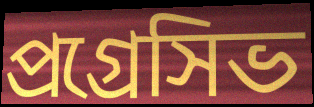
প্রগ্রেসিভ